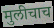
मुलीचाच